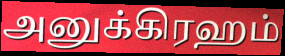
அனுக்கிரஹம்